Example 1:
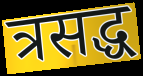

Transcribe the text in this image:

त्रसद्ध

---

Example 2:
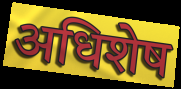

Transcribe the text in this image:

अधिशेष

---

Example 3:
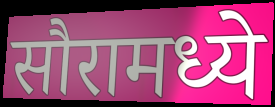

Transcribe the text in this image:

सौरामध्ये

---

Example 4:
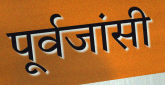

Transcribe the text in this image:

पूर्वजांसी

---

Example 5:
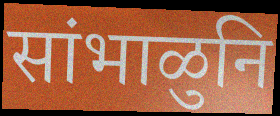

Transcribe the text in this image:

सांभाळुनि